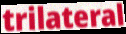
trilateral